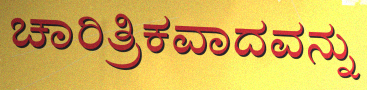
ಚಾರಿತ್ರಿಕವಾದವನ್ನು